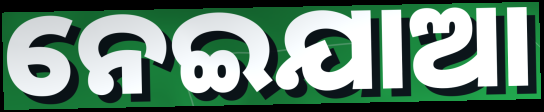
ନେଇଯାଆ